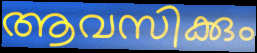
ആവസിക്കും